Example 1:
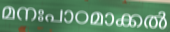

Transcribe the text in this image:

മനഃപാഠമാക്കൽ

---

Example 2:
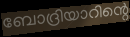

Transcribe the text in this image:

ബോദ്രിയാറിന്റെ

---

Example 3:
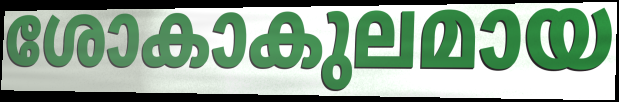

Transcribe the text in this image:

ശോകാകുലമായ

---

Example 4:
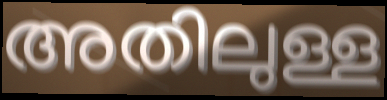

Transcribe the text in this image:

അതിലുള്ള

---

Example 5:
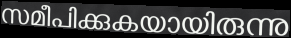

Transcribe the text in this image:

സമീപിക്കുകയായിരുന്നു